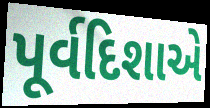
પૂર્વદિશાએ